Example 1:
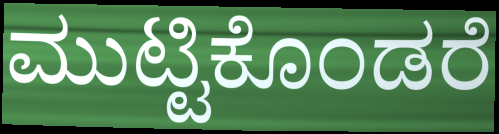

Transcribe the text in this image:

ಮುಟ್ಟಿಕೊಂಡರೆ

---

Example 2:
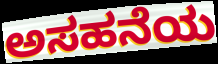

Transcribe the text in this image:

ಅಸಹನೆಯ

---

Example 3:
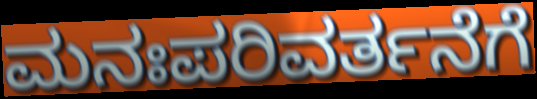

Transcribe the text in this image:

ಮನಃಪರಿವರ್ತನೆಗೆ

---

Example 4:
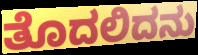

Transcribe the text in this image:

ತೊದಲಿದನು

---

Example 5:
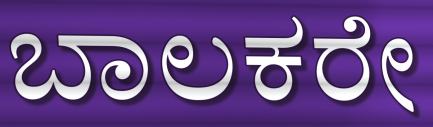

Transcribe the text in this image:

ಬಾಲಕರೇ